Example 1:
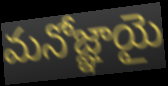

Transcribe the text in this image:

మనోజ్ఞాయై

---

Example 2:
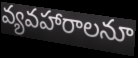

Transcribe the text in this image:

వ్యవహారాలనూ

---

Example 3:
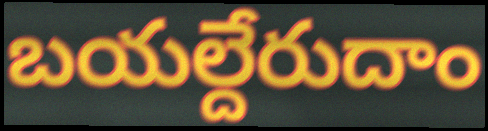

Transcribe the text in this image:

బయల్దేరుదాం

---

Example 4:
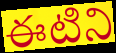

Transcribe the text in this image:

ఈటిని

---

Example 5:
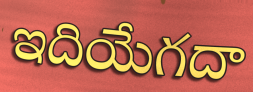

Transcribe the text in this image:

ఇదియేగదా